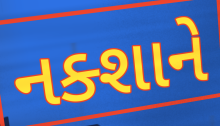
નક્શાને